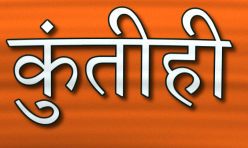
कुंतीही